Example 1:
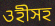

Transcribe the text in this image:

ওহীসহ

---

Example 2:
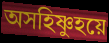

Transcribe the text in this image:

অসহিষ্ণুহয়ে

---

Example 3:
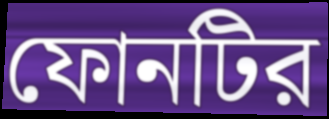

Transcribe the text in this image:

ফোনটির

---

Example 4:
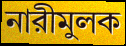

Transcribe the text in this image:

নারীমুলক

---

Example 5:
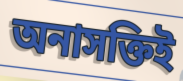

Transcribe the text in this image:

অনাসক্তিই